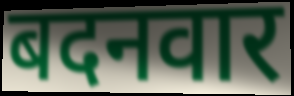
बदनवार